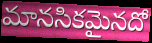
మానసికమైనదో